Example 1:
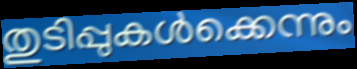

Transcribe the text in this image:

തുടിപ്പുകൾക്കെന്നും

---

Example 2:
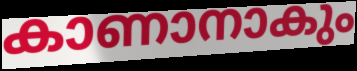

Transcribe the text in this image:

കാണാനാകും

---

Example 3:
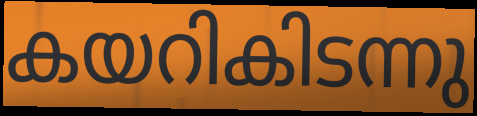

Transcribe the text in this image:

കയറികിടന്നു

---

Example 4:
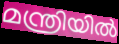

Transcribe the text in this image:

മന്ത്രിയിൽ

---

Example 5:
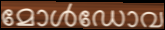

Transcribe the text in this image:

മോൾഡോവ